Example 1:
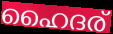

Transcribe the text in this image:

ഹൈദര്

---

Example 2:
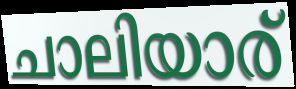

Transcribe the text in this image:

ചാലിയാര്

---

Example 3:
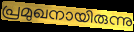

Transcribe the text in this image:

പ്രമുഖനായിരുന്നു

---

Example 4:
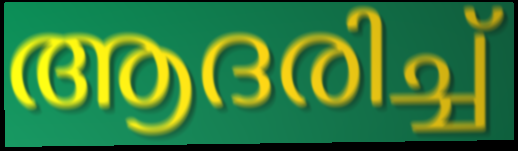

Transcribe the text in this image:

ആദരിച്ച്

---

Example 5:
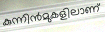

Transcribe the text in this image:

കുന്നിൻമുകളിലാണ്